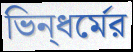
ভিন্‌ধর্মের